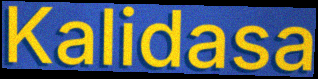
Kalidasa